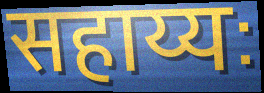
सहाय्यः